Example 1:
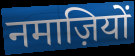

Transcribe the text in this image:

नमाज़ियों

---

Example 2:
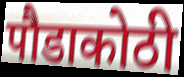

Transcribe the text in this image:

पौडाकोठी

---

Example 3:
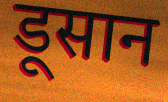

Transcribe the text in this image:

डूसान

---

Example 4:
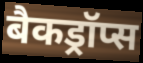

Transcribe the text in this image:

बैकड्रॉप्स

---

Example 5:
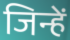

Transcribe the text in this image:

जिन्‍हें